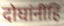
दोघांनींहि